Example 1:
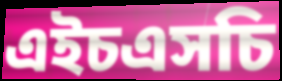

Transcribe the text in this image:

এইচএসচি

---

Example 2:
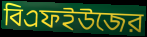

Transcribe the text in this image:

বিএফইউজের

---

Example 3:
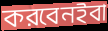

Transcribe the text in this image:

করবেনইবা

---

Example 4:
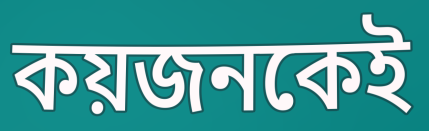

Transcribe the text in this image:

কয়জনকেই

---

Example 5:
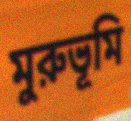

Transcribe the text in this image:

মুরুভূমি